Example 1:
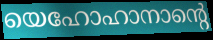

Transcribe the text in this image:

യെഹോഹാനാന്റെ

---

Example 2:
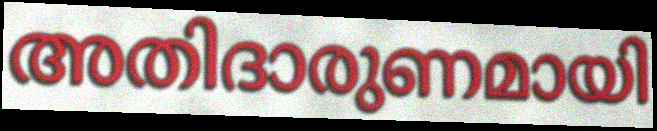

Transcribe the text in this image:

അതിദാരുണമായി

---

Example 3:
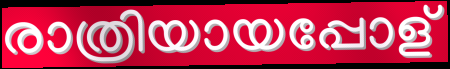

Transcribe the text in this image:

രാത്രിയായപ്പോള്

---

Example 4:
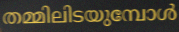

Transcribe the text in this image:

തമ്മിലിടയുമ്പോൾ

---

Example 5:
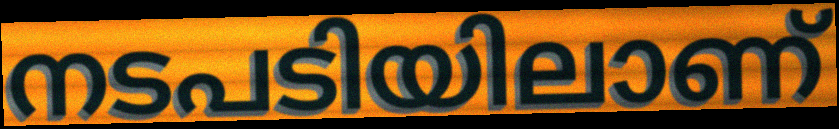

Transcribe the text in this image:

നടപടിയിലാണ്